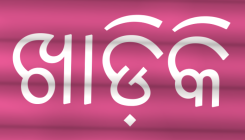
ଖାଡ଼ିକି